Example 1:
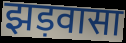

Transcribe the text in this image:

झड़वासा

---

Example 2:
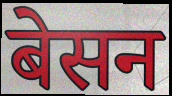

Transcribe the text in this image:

बेसन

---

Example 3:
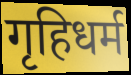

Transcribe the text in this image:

गृहिधर्म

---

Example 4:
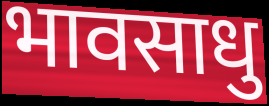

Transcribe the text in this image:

भावसाधु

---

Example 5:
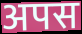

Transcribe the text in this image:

अपस